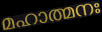
മഹാത്മനഃ